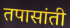
तपासांती